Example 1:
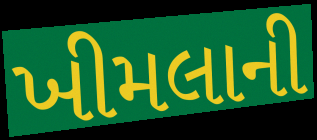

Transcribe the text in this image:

ખીમલાની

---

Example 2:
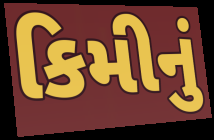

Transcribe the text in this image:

કિમીનું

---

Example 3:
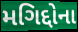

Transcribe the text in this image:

મગિદ્દોના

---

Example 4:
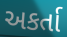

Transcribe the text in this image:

અકર્તા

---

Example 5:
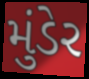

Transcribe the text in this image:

મુંડેર